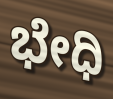
ಭೇಧಿ